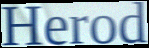
Herod